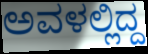
ಅವಳಲ್ಲಿದ್ದ